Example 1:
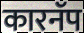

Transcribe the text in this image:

कारनॅप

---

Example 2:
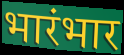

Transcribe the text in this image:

भारंभार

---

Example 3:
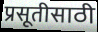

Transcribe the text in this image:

प्रसूतीसाठी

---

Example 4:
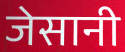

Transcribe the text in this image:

जेसानी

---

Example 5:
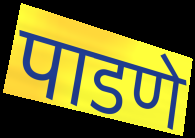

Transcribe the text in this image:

पाडणे